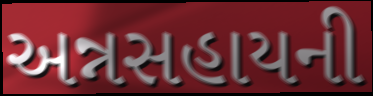
અન્નસહાયની